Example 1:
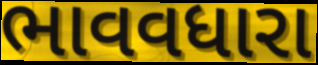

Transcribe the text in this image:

ભાવવધારા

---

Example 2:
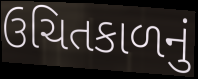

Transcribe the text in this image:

ઉચિતકાળનું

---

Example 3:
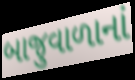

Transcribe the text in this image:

બાજુવાળાનાં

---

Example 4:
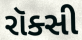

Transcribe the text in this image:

રૉક્સી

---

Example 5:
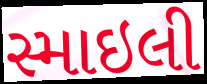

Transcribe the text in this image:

સ્માઇલી